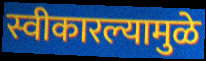
स्वीकारल्यामुळे